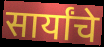
सार्यांचे